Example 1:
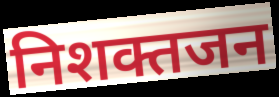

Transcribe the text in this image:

निशक्तजन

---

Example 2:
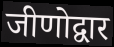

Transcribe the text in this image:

जीणोद्वार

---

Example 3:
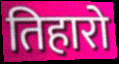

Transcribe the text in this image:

तिहारो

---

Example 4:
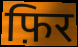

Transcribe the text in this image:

फ़िर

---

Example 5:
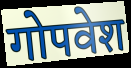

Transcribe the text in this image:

गोपवेश